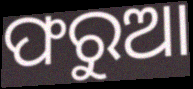
ଫରୁଆ